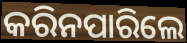
କରିନପାରିଲେ